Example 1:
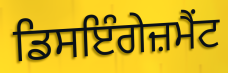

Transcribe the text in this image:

ਡਿਸਇੰਗੇਜ਼ਮੈਂਟ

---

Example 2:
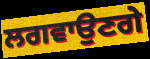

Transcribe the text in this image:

ਲਗਵਾਉਣਗੇ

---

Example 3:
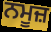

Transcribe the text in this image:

ਨਮੂਜ਼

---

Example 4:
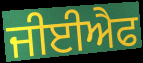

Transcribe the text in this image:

ਜੀਈਐਫ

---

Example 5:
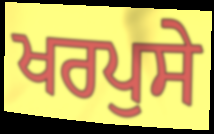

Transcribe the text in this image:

ਖਰਪੁਸੇ